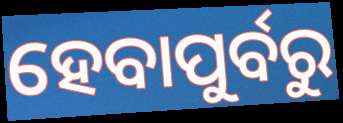
ହେବାପୁର୍ବରୁ